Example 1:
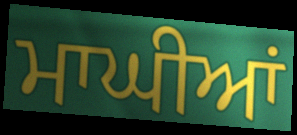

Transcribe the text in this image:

ਮਾਘੀਆਂ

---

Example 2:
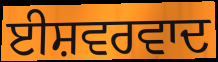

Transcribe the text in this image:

ਈਸ਼ਵਰਵਾਦ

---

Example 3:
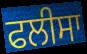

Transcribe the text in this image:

ਫਲੀਸਾ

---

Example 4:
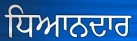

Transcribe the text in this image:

ਧਿਆਨਦਾਰ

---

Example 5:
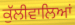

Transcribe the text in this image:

ਕੁੱਲੀਵਾਲਿਆਂ